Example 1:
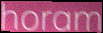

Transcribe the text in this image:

horam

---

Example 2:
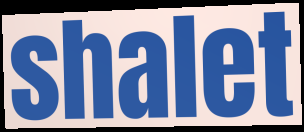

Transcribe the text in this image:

shalet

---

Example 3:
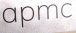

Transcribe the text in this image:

apmc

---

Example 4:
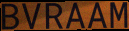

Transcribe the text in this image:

BVRAAM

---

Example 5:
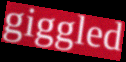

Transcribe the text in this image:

giggled